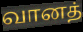
வானத்